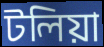
টলিয়া